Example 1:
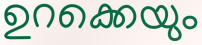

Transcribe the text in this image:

ഉറക്കെയും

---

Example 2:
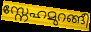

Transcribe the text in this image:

സ്നേഹമുറങ്ങീ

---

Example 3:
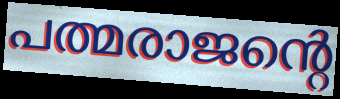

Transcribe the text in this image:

പത്മരാജന്റെ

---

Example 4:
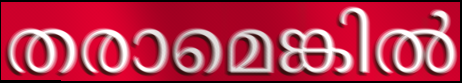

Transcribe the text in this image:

തരാമെങ്കിൽ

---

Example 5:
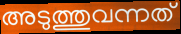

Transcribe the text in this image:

അടുത്തുവന്നത്